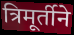
त्रिमूर्तीने